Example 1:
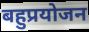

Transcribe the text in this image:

बहुप्रयोजन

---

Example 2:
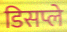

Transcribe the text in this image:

डिसप्ले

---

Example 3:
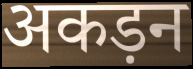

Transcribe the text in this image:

अकड़न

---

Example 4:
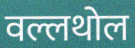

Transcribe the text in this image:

वल्लथोल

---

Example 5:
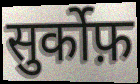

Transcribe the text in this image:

सुर्कोफ़